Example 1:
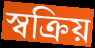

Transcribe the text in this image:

স্বক্রিয়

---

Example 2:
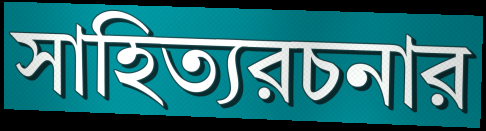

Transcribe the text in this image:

সাহিত্যরচনার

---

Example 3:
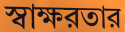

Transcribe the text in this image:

স্বাক্ষরতার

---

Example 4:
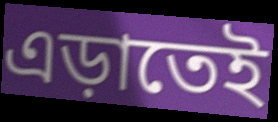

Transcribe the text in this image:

এড়াতেই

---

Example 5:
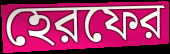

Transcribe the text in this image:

হেরফের